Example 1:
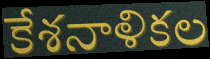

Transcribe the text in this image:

కేశనాళికల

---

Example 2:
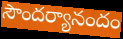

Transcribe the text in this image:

సౌందర్యానందం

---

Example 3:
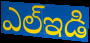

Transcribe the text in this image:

ఎల్ఇడి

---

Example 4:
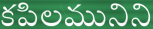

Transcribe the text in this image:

కపిలమునిని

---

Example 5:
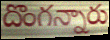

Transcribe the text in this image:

దొంగన్నారు